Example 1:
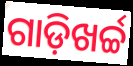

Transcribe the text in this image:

ଗାଡ଼ିଖର୍ଚ୍ଚ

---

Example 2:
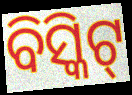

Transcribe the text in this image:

ବିସ୍କିଟ୍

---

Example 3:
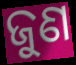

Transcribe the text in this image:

ଜୁଣ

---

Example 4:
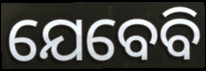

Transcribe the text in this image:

ଯେବେବି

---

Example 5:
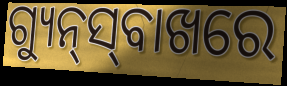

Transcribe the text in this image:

ଗ୍ୟୁନ୍‍ସ୍‍ବାଖରେ